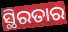
ସ୍ଥିରତାର